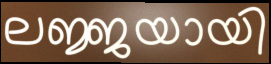
ലജ്ജയായി